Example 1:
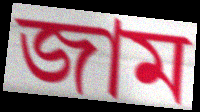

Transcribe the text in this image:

জাম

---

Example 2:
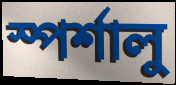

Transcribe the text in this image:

স্পর্শালু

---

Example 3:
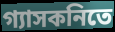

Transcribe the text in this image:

গ্যাসকনিতে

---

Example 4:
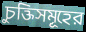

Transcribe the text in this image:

চুক্তিসমূহের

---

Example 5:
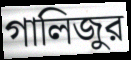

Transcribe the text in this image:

গালিজুর